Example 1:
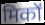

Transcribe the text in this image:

मिकों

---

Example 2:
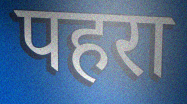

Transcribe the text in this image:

पहरा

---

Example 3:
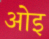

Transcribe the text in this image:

ओइ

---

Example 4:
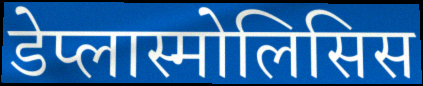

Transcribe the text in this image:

डेप्लास्मोलिसिस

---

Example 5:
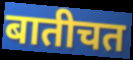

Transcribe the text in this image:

बातीचत